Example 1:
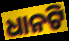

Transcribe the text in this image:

ଧାନଟି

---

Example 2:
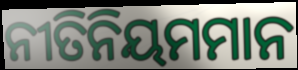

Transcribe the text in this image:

ନୀତିନିୟମମାନ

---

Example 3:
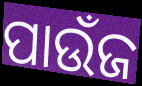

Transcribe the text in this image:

ପାଉଁଜ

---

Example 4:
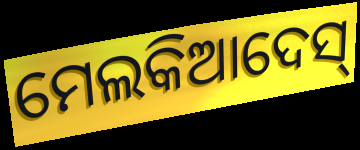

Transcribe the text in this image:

ମେଲକିଆଦେସ୍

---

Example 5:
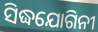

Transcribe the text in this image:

ସିଦ୍ଧଯୋଗିନୀ